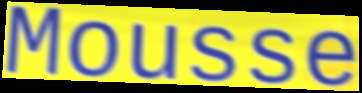
Mousse